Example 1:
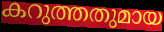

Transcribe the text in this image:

കറുത്തതുമായ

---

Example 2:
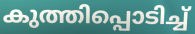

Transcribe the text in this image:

കുത്തിപ്പൊടിച്ച്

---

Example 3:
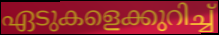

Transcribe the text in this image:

ഏടുകളെക്കുറിച്ച്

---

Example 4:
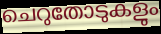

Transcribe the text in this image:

ചെറുതോടുകളും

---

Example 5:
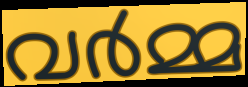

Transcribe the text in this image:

വർമ്മ